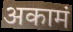
अकामं